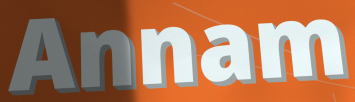
Annam